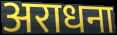
अराधना